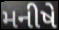
મનીષે